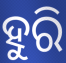
ହୁରି